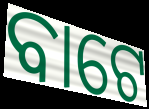
ବାଟେ